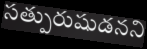
సత్పురుషుడనని